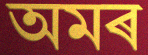
অমৰ